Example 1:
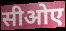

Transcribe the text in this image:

सीओए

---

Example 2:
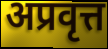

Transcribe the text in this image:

अप्रवृत्त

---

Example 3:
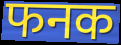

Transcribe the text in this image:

फनक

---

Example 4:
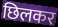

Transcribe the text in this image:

छिलकर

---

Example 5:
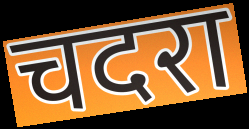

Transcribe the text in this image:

चदरा